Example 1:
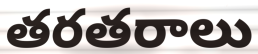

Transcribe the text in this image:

తరతరాలు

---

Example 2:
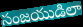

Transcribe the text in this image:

సంజయుడిలా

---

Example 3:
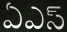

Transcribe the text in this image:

ఏఎస్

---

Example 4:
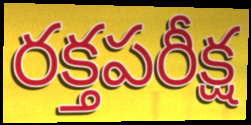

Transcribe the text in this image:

రక్తపరీక్ష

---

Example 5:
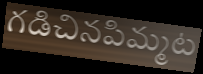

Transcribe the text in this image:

గడిచినపిమ్మట